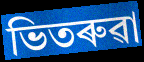
ভিতৰুৱা